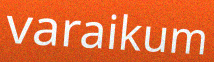
varaikum